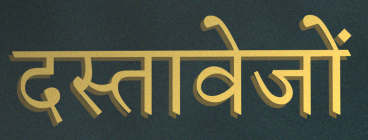
दस्तावेजों